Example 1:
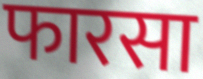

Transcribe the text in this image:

फारसा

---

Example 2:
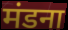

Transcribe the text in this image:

मंडना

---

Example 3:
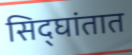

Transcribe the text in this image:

सिद्घांतात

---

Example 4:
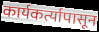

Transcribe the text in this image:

कार्यकर्त्यापासून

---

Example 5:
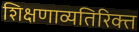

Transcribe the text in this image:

शिक्षणाव्यतिरिक्त